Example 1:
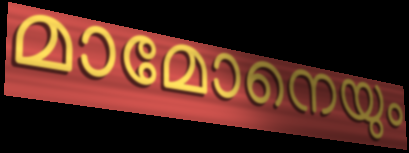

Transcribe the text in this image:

മാമോനെയും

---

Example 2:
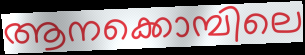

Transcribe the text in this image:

ആനക്കൊമ്പിലെ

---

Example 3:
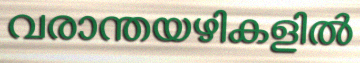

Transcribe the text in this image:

വരാന്തയഴികളിൽ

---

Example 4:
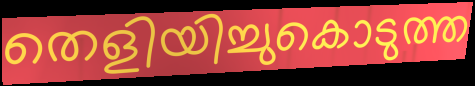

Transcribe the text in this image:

തെളിയിച്ചുകൊടുത്ത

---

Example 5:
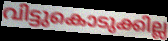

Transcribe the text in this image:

വിട്ടുകൊടുക്കില്ല